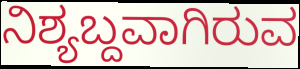
ನಿಶ್ಯಬ್ದವಾಗಿರುವ